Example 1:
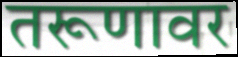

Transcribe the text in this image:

तरूणावर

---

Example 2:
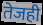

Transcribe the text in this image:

तेजही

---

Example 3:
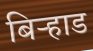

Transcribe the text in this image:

बिऱ्हाड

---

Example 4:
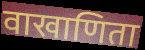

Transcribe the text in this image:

वाखाणिता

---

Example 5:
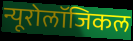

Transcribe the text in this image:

न्यूरोलॉजिकल